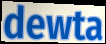
dewta